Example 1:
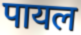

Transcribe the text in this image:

पायल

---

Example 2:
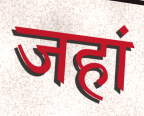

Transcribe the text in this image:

जहां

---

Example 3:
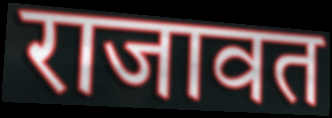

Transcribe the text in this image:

राजावत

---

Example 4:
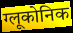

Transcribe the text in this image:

ग्लूकोनिक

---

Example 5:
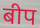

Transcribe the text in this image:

बीप